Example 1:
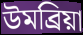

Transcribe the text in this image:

উমব্রিয়া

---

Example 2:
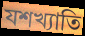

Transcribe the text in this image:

যশখ্যাতি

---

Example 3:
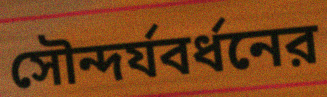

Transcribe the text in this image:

সৌন্দর্যবর্ধনের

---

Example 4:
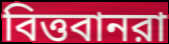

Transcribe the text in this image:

বিত্তবানরা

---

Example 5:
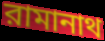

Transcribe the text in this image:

রামানাথ